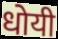
धोयी